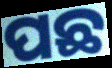
ପଛ